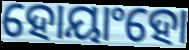
ହୋୟାଂହୋ